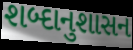
શબ્દાનુશાસન